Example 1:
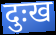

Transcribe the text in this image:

दुःख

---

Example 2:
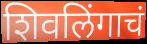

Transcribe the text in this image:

शिवलिंगाचं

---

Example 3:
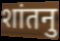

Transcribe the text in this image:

शांतनु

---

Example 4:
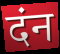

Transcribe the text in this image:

दंन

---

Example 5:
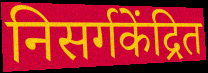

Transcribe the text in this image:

निसर्गकेंद्रित